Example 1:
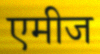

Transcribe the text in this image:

एमीज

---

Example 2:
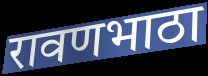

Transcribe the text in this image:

रावणभाठा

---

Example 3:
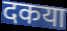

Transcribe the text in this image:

दकया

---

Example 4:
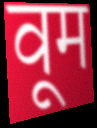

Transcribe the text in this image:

वूम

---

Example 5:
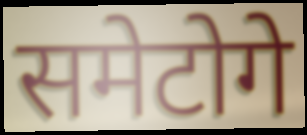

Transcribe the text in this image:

समेटोगे